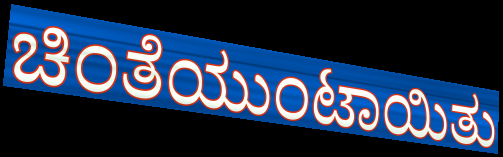
ಚಿಂತೆಯುಂಟಾಯಿತು